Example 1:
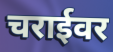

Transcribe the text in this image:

चराईवर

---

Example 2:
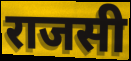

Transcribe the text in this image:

राजसी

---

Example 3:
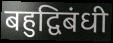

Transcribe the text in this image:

बहुद्विबंधी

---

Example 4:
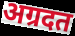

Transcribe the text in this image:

अग्रदत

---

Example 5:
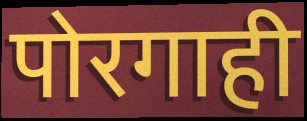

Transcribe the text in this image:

पोरगाही